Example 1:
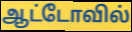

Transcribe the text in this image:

ஆட்டோவில்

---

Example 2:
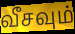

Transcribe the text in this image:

வீசவும்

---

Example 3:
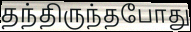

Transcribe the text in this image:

தந்திருந்தபோது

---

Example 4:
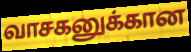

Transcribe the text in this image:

வாசகனுக்கான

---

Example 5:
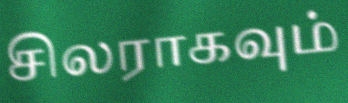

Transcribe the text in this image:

சிலராகவும்